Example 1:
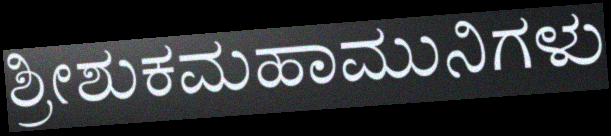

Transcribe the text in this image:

ಶ್ರೀಶುಕಮಹಾಮುನಿಗಳು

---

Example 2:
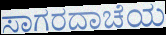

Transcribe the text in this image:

ಸಾಗರದಾಚೆಯ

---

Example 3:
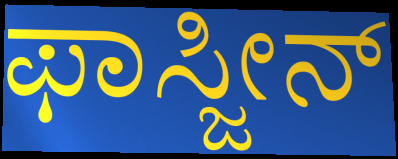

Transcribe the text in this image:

ಫಾಸ್ಜೀನ್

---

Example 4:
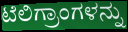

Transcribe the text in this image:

ಟೆಲಿಗ್ರಾಂಗಳನ್ನು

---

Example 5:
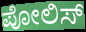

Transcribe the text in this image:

ಪೋಲಿಸ್